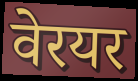
वेरयर